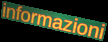
informazioni